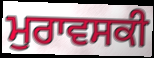
ਮੁਰਾਵਸਕੀ